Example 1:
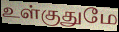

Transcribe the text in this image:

உள்குதுமே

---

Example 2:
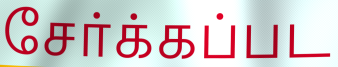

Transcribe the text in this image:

சேர்க்கப்பட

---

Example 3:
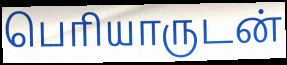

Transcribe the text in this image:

பெரியாருடன்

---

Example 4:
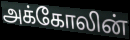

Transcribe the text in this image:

அக்கோலின்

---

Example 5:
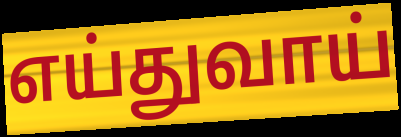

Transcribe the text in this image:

எய்துவாய்